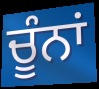
ਚੂੰਨਾਂ